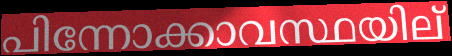
പിന്നോക്കാവസ്ഥയില്